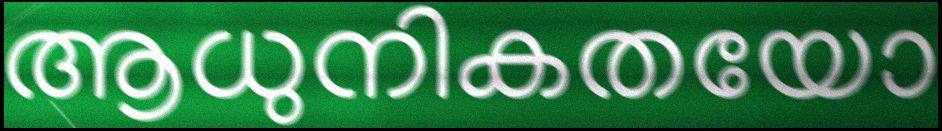
ആധുനികതയോ